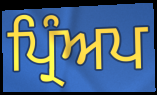
ਪ੍ਰਿੰਅਪ